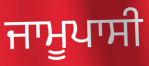
ਜਾਮੂਪਾਸੀ